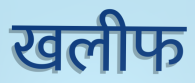
खलीफ